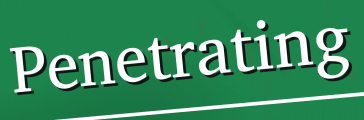
Penetrating